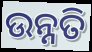
ଉନ୍ନତି